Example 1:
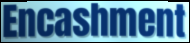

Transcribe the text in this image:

Encashment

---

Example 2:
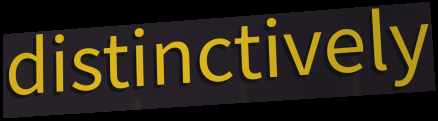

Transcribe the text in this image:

distinctively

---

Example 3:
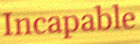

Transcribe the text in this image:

Incapable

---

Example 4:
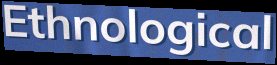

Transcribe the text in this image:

Ethnological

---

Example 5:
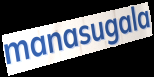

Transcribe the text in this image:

manasugala